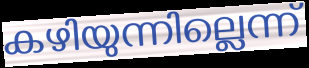
കഴിയുന്നില്ലെന്ന്